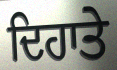
ਦਿਹਾਤੇ